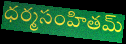
ధర్మసంహితమ్